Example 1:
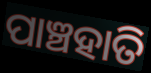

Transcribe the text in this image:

ପାଞ୍ଚହାତି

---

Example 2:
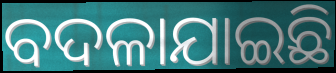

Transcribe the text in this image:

ବଦଳାଯାଇଛି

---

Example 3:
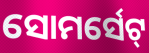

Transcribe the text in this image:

ସୋମର୍ସେଟ୍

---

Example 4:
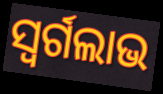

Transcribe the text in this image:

ସ୍ୱର୍ଗଲାଭ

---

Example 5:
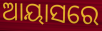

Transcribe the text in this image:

ଆୟାସରେ